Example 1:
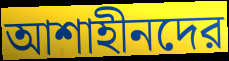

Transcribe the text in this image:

আশাহীনদের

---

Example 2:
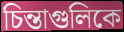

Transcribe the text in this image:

চিন্তাগুলিকে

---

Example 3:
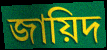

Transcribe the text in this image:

জায়িদ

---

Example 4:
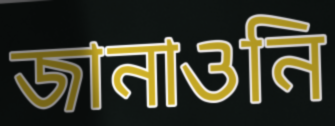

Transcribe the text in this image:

জানাওনি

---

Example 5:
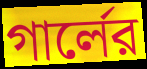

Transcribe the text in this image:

গার্লের